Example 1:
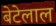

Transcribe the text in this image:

बेटेलाल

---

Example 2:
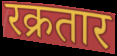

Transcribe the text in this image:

रक्रतार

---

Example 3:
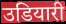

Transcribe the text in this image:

उडियारी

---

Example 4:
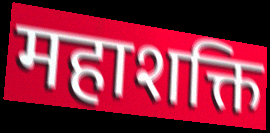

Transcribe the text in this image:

महाशक्ति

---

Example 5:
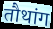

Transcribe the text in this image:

तौथांग